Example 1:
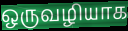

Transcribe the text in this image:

ஒருவழியாக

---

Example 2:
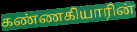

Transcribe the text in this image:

கண்ணகியாரின்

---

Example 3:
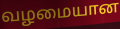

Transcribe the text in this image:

வழமையான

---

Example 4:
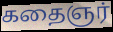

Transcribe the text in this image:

கதைஞர்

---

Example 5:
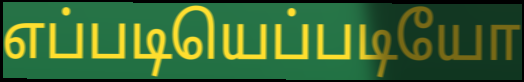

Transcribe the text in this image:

எப்படியெப்படியோ